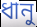
ধানু